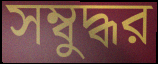
সম্বুদ্ধর